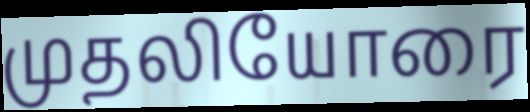
முதலியோரை